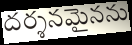
దర్శనమైనను